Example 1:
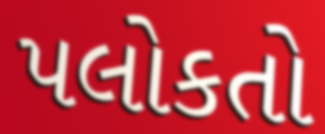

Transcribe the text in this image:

પલોકતો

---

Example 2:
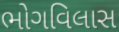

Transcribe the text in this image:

ભોગવિલાસ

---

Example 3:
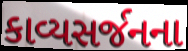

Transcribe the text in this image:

કાવ્યસર્જનના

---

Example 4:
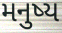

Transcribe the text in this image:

મનુષ્ય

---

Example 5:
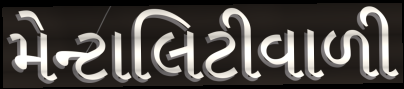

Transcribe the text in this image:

મેન્ટાલિટીવાળી